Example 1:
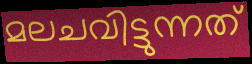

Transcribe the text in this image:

മലചവിട്ടുന്നത്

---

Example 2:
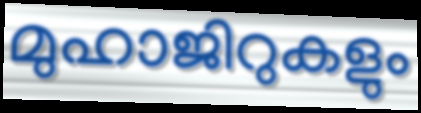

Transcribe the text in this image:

മുഹാജിറുകളും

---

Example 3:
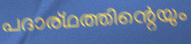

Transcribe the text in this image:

പദാര്ഥത്തിന്റെയും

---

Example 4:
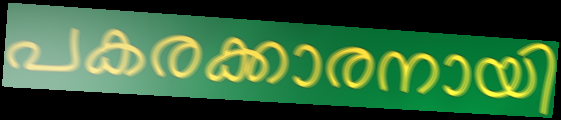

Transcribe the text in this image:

പകരക്കാരനായി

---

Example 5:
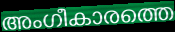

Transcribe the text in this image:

അംഗീകാരത്തെ